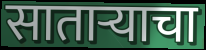
साताऱ्याचा